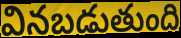
వినబడుతుంది